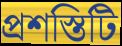
প্রশস্তিটি